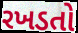
રખડતો